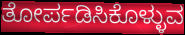
ತೋರ್ಪಡಿಸಿಕೊಳ್ಳುವ